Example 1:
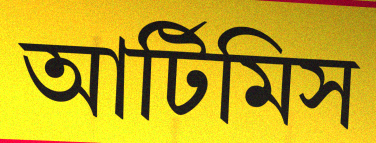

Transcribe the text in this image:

আর্টিমিস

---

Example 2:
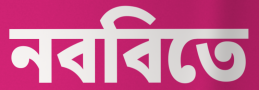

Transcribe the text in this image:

নববিতে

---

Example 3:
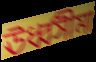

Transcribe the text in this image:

ঊর্ধ্বসীমা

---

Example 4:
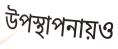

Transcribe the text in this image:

উপস্থাপনায়ও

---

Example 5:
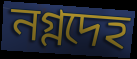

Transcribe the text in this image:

নগ্নদেহ